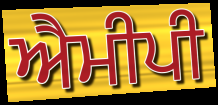
ਐਮੀਪੀ